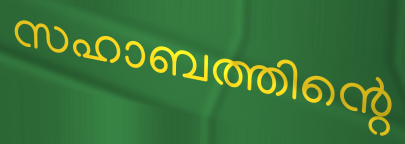
സഹാബത്തിന്റെ